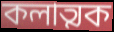
কলাত্মক